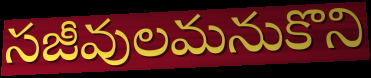
సజీవులమనుకొని